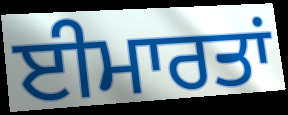
ਈਮਾਰਤਾਂ